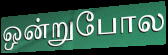
ஒன்றுபோல